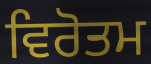
ਵਿਰੋਤਮ